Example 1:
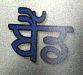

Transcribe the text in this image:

ਬੈੱਡ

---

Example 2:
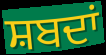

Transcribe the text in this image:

ਸ਼ਬਦਾਂ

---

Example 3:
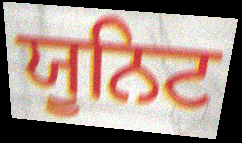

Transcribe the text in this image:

ਯੂਨਿਟ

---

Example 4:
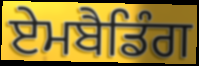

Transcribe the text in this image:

ਏਮਬੈਡਿੰਗ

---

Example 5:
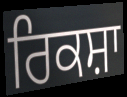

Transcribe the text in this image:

ਰਿਕਸ਼ਾ